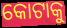
କୋଟାକୁ